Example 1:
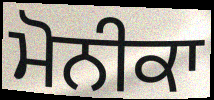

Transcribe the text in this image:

ਮੋਨੀਕਾ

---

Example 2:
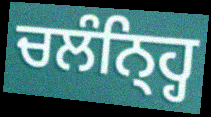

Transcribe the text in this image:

ਚਲੰਨ੍ਹ੍ਹਿ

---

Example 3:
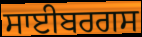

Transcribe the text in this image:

ਸਾਈਬਰਗਸ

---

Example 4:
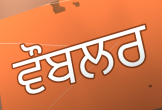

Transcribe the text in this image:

ਵੌਬਲਰ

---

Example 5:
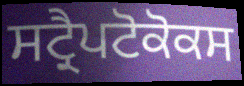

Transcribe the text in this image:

ਸਟ੍ਰੈਪਟੋਕੋਕਸ